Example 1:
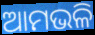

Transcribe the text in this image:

ଆମଭଳି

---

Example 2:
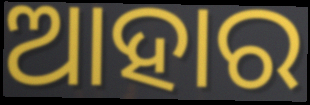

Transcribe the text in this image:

ଆହାର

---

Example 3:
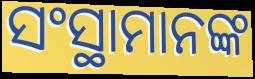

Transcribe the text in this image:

ସଂସ୍ଥାମାନଙ୍କ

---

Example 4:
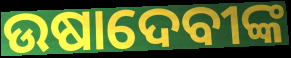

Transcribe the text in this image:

ଉଷାଦେବୀଙ୍କ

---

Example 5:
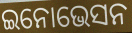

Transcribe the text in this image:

ଇନୋଭେସନ